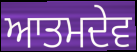
ਆਤਮਦੇਵ